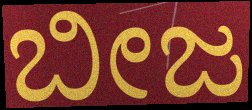
ಬೀಜ